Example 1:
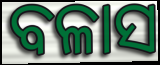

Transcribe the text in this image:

ବଳାସ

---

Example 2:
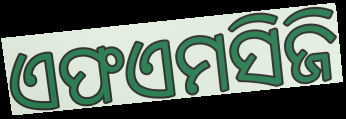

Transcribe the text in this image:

ଏଫଏମସିଜି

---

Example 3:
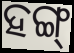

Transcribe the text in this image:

ହଙ୍ଗ୍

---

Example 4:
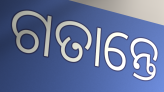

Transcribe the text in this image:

ଗତାନ୍ତେ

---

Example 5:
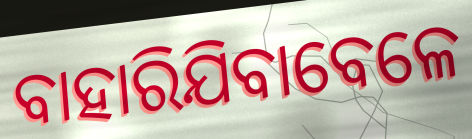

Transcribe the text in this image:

ବାହାରିଯିବାବେଳେ